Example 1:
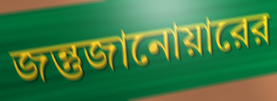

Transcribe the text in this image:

জন্তুজানোয়ারের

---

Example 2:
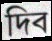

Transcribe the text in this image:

দিব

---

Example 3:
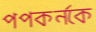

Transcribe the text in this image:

পপকর্নকে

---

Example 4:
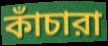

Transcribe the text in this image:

কাঁচারা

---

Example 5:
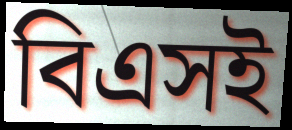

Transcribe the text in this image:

বিএসই